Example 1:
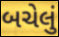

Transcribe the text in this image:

બચેલું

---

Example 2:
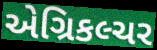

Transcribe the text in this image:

એગ્રિકલ્ચર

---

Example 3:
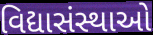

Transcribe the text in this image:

વિદ્યાસંસ્થાઓ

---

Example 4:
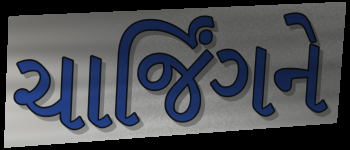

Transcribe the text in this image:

ચાર્જિંગને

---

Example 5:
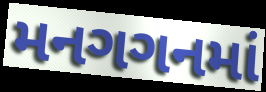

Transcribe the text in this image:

મનગગનમાં